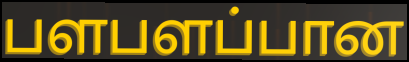
பளபளப்பான